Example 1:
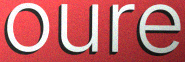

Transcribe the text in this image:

oure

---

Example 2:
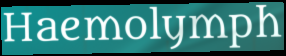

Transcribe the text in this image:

Haemolymph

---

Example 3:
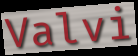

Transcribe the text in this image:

Valvi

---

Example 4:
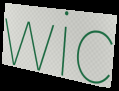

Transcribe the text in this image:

wic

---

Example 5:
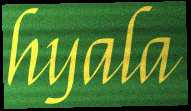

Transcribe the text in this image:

hyala